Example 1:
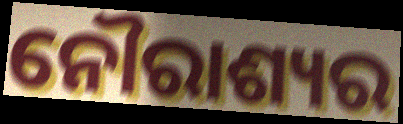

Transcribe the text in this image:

ନୌରାଶ୍ୟର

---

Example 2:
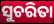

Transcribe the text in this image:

ସୁଚରିତା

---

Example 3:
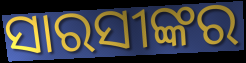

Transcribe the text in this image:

ସାରସୀଙ୍କର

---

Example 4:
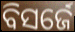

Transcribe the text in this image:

ବିସର୍ଜେ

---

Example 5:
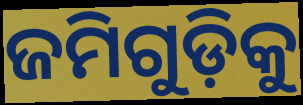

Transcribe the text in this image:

ଜମିଗୁଡ଼ିକୁ